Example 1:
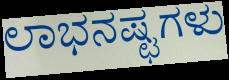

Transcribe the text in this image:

ಲಾಭನಷ್ಟಗಳು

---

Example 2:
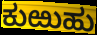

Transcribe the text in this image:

ಕುಱುಹು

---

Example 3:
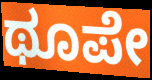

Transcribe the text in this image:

ಥೂಪೇ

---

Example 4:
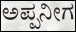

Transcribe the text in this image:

ಅಪ್ಪನೀಗ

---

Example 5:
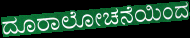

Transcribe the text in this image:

ದೂರಾಲೋಚನೆಯಿಂದ